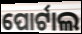
ପୋର୍ଟାଲ